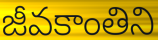
జీవకాంతిని